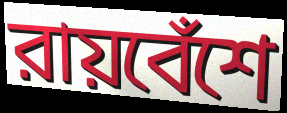
রায়বেঁশে